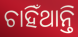
ଚାହିଁଥାନ୍ତି